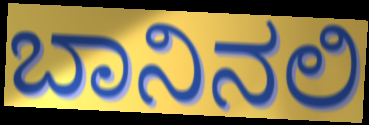
ಬಾನಿನಲಿ